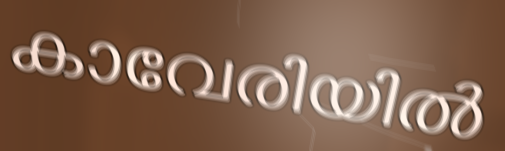
കാവേരിയിൽ